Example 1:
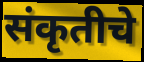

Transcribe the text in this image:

संकृतीचे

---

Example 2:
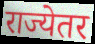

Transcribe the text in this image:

राज्येतर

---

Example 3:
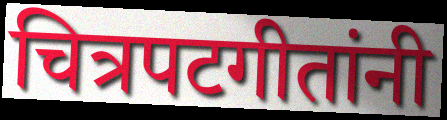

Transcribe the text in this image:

चित्रपटगीतांनी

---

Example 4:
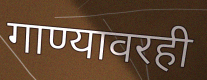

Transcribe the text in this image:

गाण्यावरही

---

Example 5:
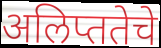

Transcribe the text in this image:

अलिप्ततेचे